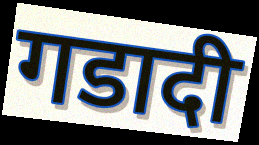
गडादी